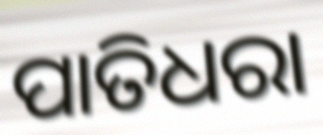
ପାତିଧରା